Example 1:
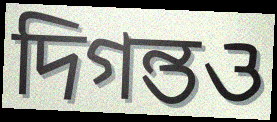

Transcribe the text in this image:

দিগন্তও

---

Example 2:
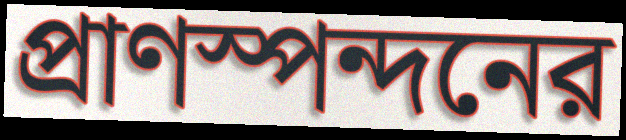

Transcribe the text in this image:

প্রাণস্পন্দনের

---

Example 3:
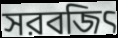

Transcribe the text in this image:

সরবজিৎ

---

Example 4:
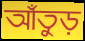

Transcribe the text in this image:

আঁতুড়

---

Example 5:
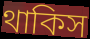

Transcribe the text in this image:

থাকিস